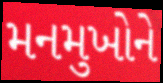
મનમુખોને